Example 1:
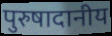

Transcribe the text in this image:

पुरुषादानीय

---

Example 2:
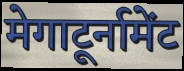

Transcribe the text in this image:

मेगाटूर्नामेंट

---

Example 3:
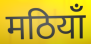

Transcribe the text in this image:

मठियाँ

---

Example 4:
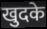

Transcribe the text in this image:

खुदके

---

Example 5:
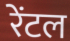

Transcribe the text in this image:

रेंटल